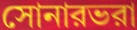
সোনারভরা